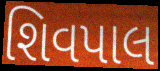
શિવપાલ